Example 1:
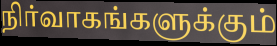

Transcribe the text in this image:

நிர்வாகங்களுக்கும்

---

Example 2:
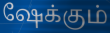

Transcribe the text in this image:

ஷேக்கும்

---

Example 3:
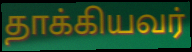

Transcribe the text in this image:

தாக்கியவர்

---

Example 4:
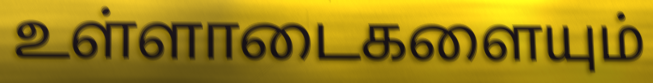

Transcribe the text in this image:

உள்ளாடைகளையும்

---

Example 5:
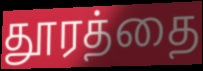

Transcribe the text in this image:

தூரத்தை